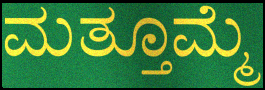
ಮತ್ತೂಮ್ಮೆ